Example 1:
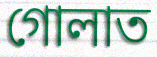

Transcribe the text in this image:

গোলাত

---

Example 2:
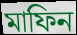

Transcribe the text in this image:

মাফিন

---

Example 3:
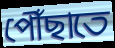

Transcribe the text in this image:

পৌঁছাতে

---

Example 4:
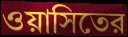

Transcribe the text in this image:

ওয়াসিতের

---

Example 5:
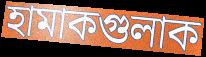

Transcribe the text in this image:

হামাকগুলাক